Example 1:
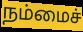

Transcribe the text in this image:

நம்மைச்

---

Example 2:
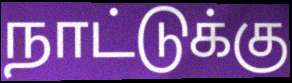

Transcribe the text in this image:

நாட்டுக்கு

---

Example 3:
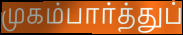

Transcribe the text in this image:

முகம்பார்த்துப்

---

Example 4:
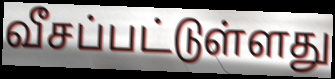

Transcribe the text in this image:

வீசப்பட்டுள்ளது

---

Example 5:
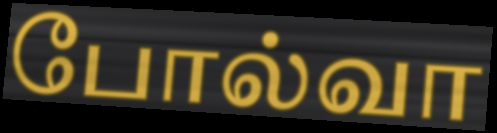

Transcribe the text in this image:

போல்வா